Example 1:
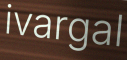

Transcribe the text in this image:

ivargal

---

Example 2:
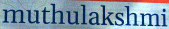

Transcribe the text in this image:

muthulakshmi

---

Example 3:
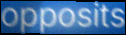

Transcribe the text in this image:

opposits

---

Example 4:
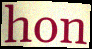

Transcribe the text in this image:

hon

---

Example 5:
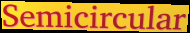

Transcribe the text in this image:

Semicircular